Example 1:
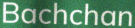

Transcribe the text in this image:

Bachchan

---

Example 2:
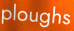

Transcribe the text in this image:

ploughs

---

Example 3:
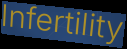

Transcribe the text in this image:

Infertility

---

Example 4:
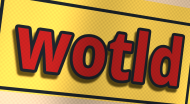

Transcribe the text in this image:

wotld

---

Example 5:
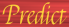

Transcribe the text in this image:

Predict